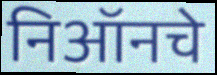
निऑनचे